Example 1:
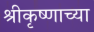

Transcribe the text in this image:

श्रीकृष्णाच्या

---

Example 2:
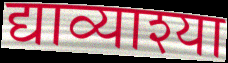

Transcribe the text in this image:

द्याव्याश्या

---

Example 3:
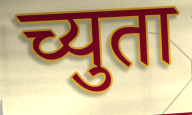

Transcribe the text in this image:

च्युता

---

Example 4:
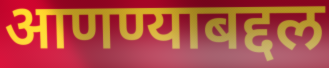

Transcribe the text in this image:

आणण्याबद्दल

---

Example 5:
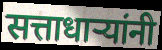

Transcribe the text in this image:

सत्ताधाऱ्यांनी